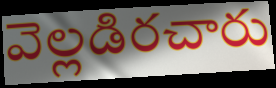
వెల్లడిరచారు